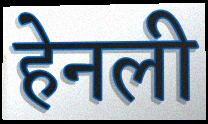
हेनली